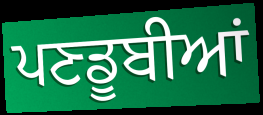
ਪਣਡੂਬੀਆਂ